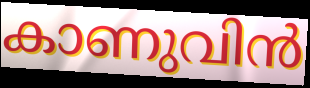
കാണുവിൻ